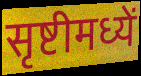
सृष्टीमध्यें